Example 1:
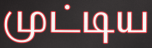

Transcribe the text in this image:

முட்டிய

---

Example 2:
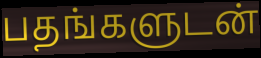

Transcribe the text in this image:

பதங்களுடன்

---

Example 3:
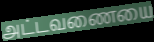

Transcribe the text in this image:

அட்டவணையை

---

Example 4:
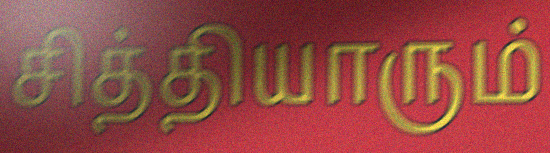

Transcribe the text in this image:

சித்தியாரும்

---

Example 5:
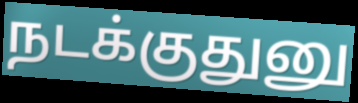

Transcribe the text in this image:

நடக்குதுனு